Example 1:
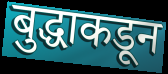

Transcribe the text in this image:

बुद्धाकडून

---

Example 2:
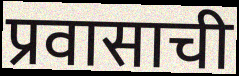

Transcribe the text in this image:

प्रवासाची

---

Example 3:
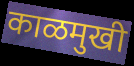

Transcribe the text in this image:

काळमुखी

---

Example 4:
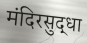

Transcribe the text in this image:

मंदिरसुद्धा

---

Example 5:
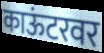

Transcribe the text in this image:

काऊंटरवर